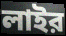
লাইর